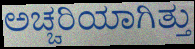
ಅಚ್ಚರಿಯಾಗಿತ್ತು